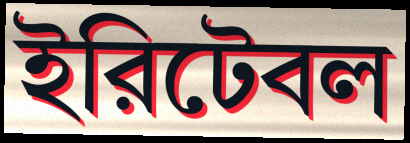
ইরিটেবল